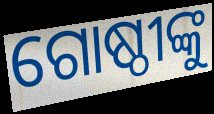
ଗୋଷ୍ଠୀଙ୍କୁ